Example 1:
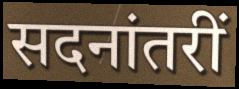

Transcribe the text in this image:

सदनांतरीं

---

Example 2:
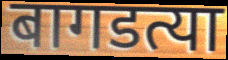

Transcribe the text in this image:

बागडत्या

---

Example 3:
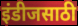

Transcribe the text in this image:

इंडीजसाठी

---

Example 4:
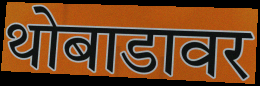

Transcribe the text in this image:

थोबाडावर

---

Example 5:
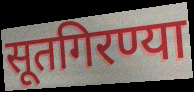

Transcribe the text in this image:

सूतगिरण्या